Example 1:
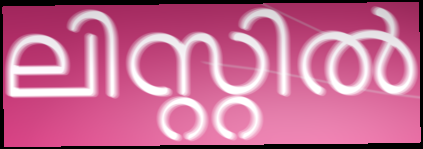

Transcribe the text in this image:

ലിസ്റ്റിൽ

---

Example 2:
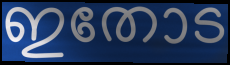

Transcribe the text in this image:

ഇതോട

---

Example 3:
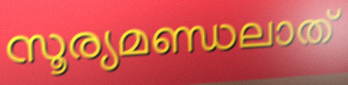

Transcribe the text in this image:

സൂര്യമണ്ഡലാത്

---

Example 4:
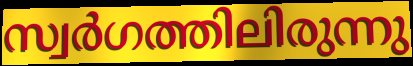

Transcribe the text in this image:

സ്വർഗത്തിലിരുന്നു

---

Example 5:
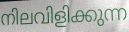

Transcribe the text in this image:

നിലവിളിക്കുന്ന